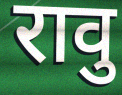
रावु